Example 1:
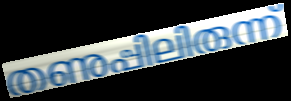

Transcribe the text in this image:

തണുപ്പിലിരുന്ന്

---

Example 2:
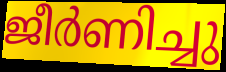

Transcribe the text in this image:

ജീർണിച്ചു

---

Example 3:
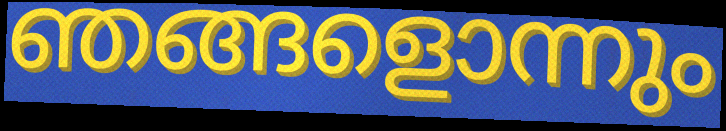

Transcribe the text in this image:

ഞങ്ങളൊന്നും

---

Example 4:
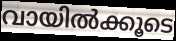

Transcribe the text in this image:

വായിൽക്കൂടെ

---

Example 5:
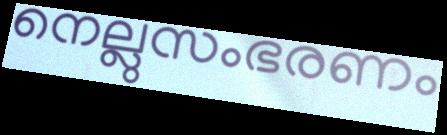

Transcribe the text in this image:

നെല്ലുസംഭരണം